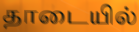
தாடையில்